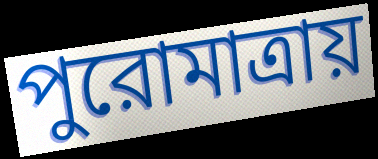
পুরোমাত্রায়